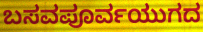
ಬಸವಪೂರ್ವಯುಗದ